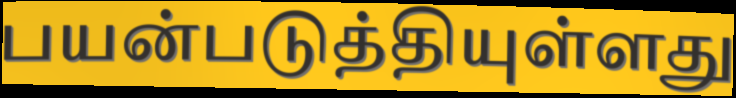
பயன்படுத்தியுள்ளது